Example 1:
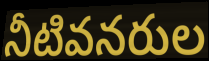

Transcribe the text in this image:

నీటివనరుల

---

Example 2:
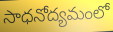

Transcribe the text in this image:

సాధనోద్యమంలో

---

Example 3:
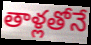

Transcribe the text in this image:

తాళ్లతోనే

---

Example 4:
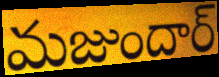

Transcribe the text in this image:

మజుందార్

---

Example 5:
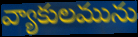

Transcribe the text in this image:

వ్యాకులమును